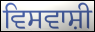
ਵਿਸਵਾਸ਼ੀ